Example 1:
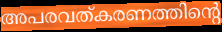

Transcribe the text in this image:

അപരവത്കരണത്തിന്റെ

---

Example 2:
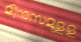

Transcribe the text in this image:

മിനുസമുളള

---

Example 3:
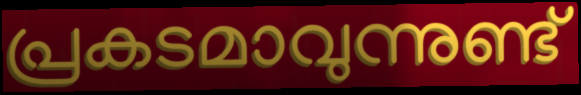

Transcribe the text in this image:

പ്രകടമാവുന്നുണ്ട്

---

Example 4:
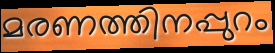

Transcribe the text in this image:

മരണത്തിനപ്പുറം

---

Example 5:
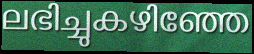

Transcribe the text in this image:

ലഭിച്ചുകഴിഞ്ഞേ